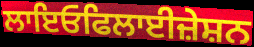
ਲਾਇਓਫਿਲਾਈਜ਼ੇਸ਼ਨ